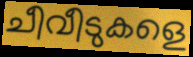
ചീവീടുകളെ